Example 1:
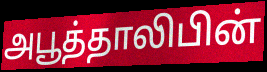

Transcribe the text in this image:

அபூத்தாலிபின்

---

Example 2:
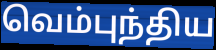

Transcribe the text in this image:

வெம்புந்திய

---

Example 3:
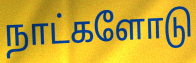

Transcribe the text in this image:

நாட்களோடு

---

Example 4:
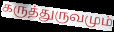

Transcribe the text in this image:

கருத்துருவமும்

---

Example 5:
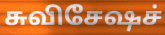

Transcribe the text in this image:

சுவிசேஷச்